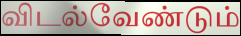
விடல்வேண்டும்